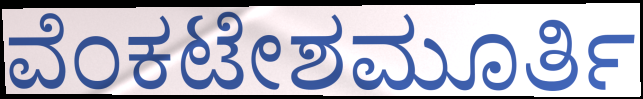
ವೆಂಕಟೇಶಮೂರ್ತಿ